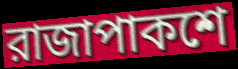
রাজাপাকশে